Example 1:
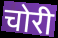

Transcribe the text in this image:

चोरी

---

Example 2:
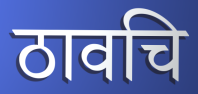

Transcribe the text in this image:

ठावचि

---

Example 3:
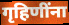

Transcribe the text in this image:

गृहिणींना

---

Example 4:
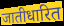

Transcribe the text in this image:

जातीधारित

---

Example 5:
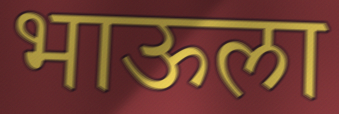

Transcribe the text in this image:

भाऊला